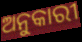
ଅନୁକାରୀ